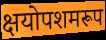
क्षयोपशमरूप